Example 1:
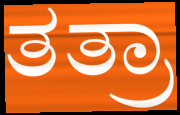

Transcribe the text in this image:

ತತ್ರಾ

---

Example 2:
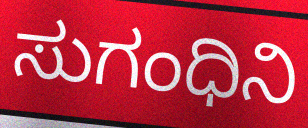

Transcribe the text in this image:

ಸುಗಂಧಿನಿ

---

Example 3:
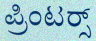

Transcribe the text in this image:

ಪ್ರಿಂಟರ‍್ಸ್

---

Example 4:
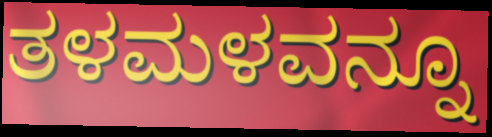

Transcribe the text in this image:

ತಳಮಳವನ್ನೂ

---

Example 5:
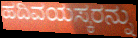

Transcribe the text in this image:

ಹದಿವಯಸ್ಕರನ್ನು